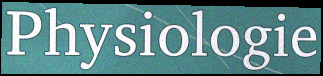
Physiologie